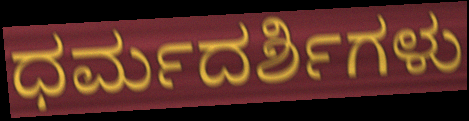
ಧರ್ಮದರ್ಶಿಗಳು